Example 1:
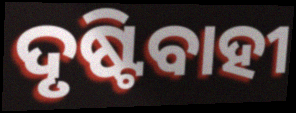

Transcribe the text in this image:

ଦୃଷ୍ଟିବାହୀ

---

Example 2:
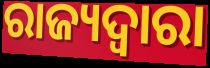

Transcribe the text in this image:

ରାଜ୍ୟଦ୍ୱାରା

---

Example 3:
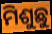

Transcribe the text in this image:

ମିଶୁଛୁ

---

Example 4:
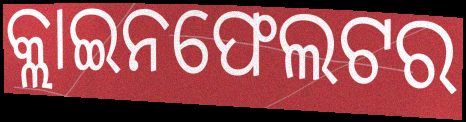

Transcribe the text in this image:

କ୍ଲାଇନଫେଲଟର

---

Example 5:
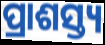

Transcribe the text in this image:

ପ୍ରାଶସ୍ତ୍ୟ